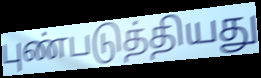
புண்படுத்தியது